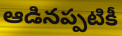
ఆడినప్పటికీ